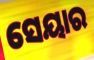
ସେୟାର